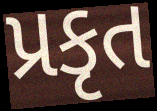
પ્રકૃત